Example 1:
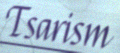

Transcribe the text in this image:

Tsarism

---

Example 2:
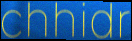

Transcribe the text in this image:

chhidr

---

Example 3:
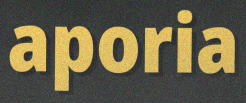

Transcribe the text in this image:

aporia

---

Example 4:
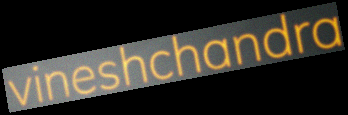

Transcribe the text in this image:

vineshchandra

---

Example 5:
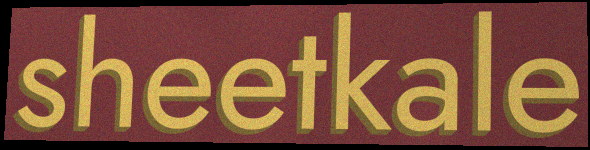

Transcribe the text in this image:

sheetkale